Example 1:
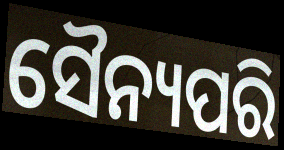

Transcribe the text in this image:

ସୈନ୍ୟପରି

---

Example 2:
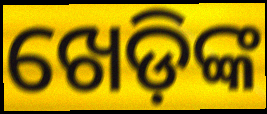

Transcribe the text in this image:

ଖେଡ଼ିଙ୍କ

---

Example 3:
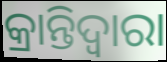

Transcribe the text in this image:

କ୍ରାନ୍ତିଦ୍ୱାରା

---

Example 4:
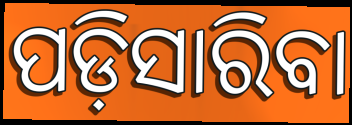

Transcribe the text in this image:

ପଡ଼ିସାରିବା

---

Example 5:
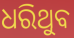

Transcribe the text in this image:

ଧରିଥୁବ